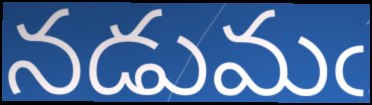
నడుమఁ